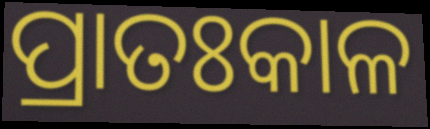
ପ୍ରାତଃକାଳ